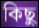
কিছু